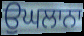
ਉਘਲਾਨਾ